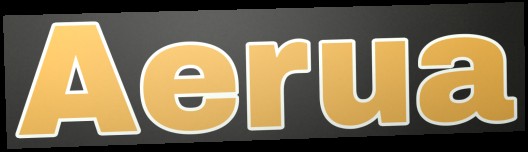
Aerua